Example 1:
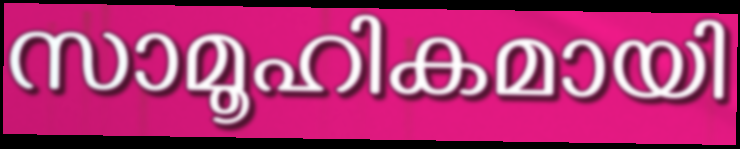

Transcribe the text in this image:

സാമൂഹികമായി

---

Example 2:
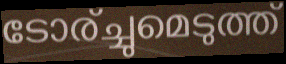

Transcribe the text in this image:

ടോര്ച്ചുമെടുത്ത്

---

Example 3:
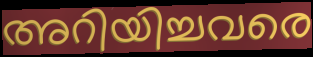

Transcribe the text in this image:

അറിയിച്ചവരെ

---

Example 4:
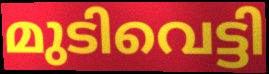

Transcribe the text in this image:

മുടിവെട്ടി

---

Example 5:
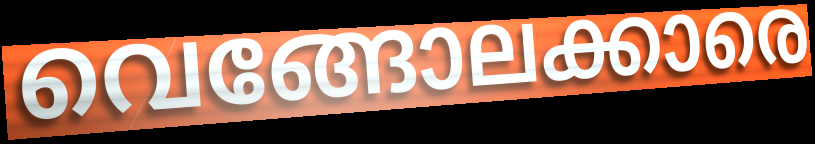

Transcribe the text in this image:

വെങ്ങോലക്കാരെ